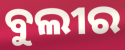
ବୁଲୀର